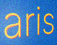
aris